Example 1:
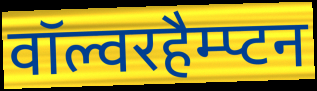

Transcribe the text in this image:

वॉल्वरहैम्प्टन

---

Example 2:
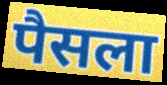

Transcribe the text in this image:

पैसला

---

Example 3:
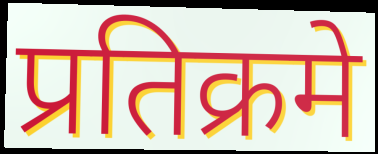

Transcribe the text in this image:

प्रतिक्रमे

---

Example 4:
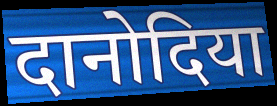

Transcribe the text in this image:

दानोदिया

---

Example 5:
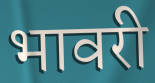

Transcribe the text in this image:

भावरी